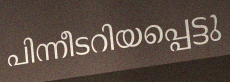
പിന്നീടറിയപ്പെട്ടു